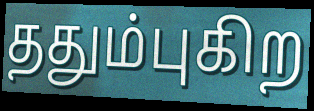
ததும்புகிற